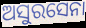
ଅସୁରସେନା